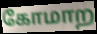
கோமாற